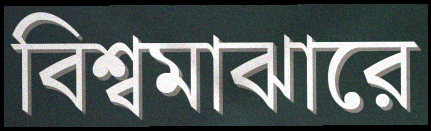
বিশ্বমাঝারে